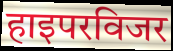
हाइपरविजर